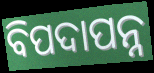
ବିପଦାପନ୍ନ